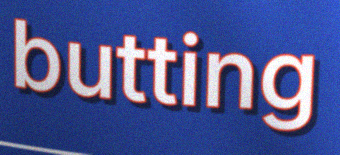
butting